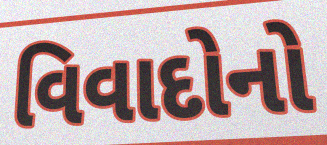
વિવાદોનો